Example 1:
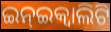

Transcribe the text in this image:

ଇନ୍ଇକ୍ଵାଲିଟି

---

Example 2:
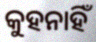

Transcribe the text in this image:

କୁହନାହିଁ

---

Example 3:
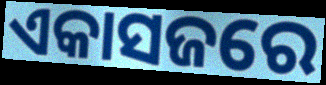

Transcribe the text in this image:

ଏକାସଜରେ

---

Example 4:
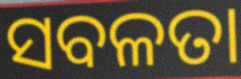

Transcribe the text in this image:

ସବଳତା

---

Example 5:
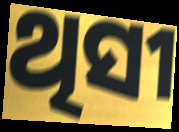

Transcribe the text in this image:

ଥିସୀ